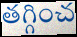
తగ్గించ